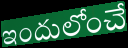
ఇందులోంచే